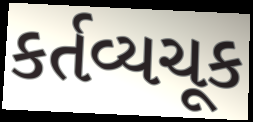
કર્તવ્યચૂક